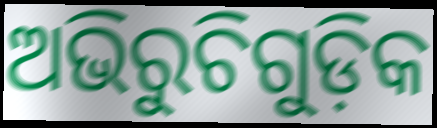
ଅଭିରୁଚିଗୁଡ଼ିକ